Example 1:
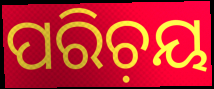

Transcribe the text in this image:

ପରିଚ଼ୟ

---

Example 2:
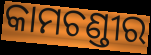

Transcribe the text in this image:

କାମଚଣ୍ଡୀର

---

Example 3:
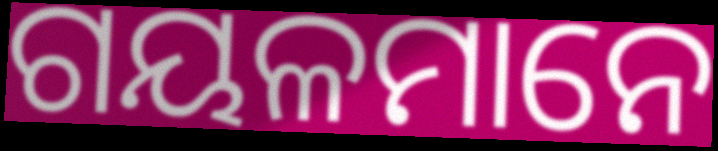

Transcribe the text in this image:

ଗୟଳମାନେ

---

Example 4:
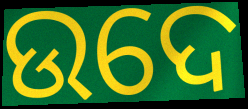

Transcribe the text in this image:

ଉଦେ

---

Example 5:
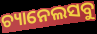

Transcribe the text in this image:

ଚ୍ୟାନେଲସବୁ